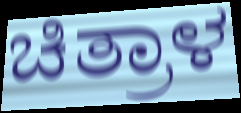
ಚಿತ್ರಾಳ